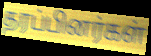
தரப்பினர்கள்